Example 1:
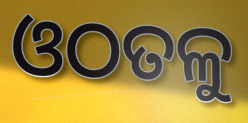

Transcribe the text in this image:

ଓଠତଳୁ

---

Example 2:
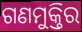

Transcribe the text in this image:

ଗଣମୁକ୍ତିର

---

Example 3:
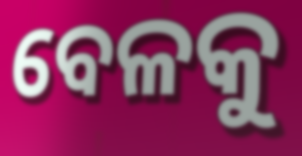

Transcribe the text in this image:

ବେଳକୁ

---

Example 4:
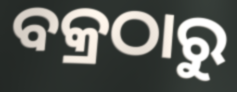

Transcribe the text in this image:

ବକ୍ରଠାରୁ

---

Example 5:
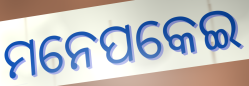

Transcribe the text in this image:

ମନେପକେଇ